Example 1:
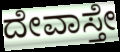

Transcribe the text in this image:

ದೇವಾಸ್ತೇ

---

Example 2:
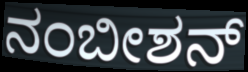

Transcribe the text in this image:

ನಂಬೀಶನ್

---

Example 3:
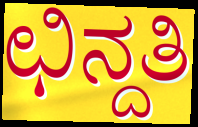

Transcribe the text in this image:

ಛಿನ್ದತಿ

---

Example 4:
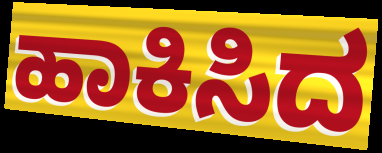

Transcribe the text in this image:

ಹಾಕಿಸಿದ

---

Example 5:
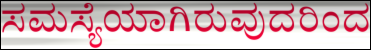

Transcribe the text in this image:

ಸಮಸ್ಯೆಯಾಗಿರುವುದರಿಂದ